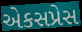
એકસપ્રેસ